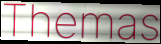
Themas